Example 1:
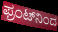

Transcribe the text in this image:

ಫ್ರಂಟ್‌ನಿಂದ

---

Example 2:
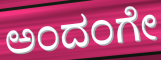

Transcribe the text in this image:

ಅಂದಂಗೇ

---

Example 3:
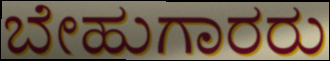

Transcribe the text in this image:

ಬೇಹುಗಾರರು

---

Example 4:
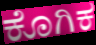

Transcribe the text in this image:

ಕೊಗಿಕ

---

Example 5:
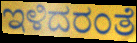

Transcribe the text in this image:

ಇಳಿದರಂತೆ